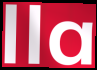
IIa